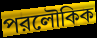
পরলৌকিক